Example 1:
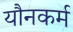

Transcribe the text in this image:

यौनकर्म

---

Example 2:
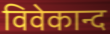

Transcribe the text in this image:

विवेकान्द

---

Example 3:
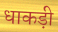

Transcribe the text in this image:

धाकड़ी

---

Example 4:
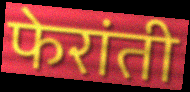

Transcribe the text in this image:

फेरांती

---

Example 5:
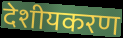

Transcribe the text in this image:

देशीयकरण